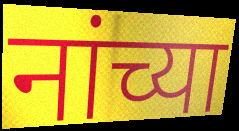
नांच्या